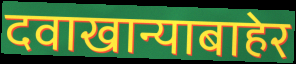
दवाखान्याबाहेर